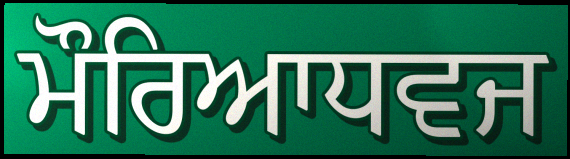
ਮੌਰਿਆਧਵਜ